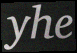
yhe